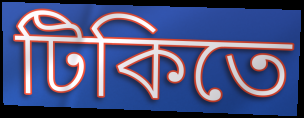
টিকিতে